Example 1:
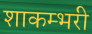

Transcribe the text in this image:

शाकम्भरी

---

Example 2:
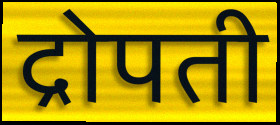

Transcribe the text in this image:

द्रोपती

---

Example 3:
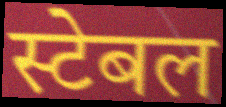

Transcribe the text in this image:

स्टेबल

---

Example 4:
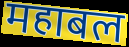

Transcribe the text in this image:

महाबल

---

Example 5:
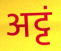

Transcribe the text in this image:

अट्टं